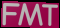
FMT